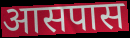
आसपास